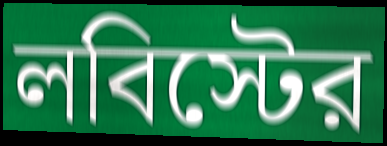
লবিস্টের